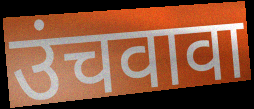
उंचवावा